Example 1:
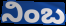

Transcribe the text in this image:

ನಿಂಬ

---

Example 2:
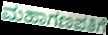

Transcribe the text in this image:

ಮಹಾಗಣಪತಿಗೆ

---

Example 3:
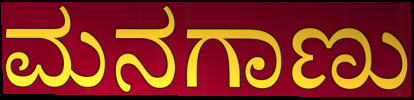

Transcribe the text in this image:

ಮನಗಾಣು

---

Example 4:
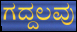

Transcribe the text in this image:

ಗದ್ದಲವು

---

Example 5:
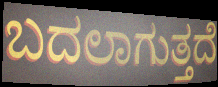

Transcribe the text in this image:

ಬದಲಾಗುತ್ತದೆ